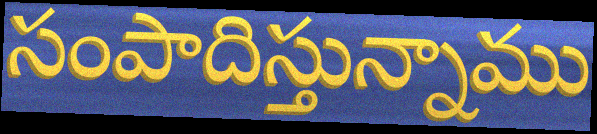
సంపాదిస్తున్నాము